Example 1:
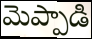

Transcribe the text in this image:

మెప్పాడి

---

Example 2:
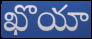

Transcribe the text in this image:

ఖొయా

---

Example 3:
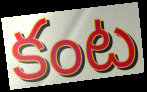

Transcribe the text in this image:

కంట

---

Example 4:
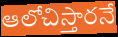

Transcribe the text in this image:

ఆలోచిస్తారనే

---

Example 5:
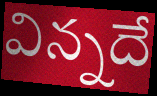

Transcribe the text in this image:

విన్నదే